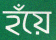
হঁয়ে